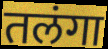
तलंगा